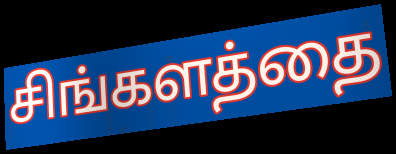
சிங்களத்தை